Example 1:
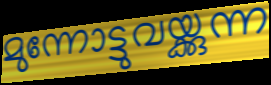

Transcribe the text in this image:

മുന്നോട്ടുവയ്ക്കുന്ന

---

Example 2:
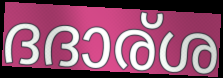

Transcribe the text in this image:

ദദാര്ശ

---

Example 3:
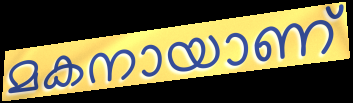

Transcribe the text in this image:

മകനായാണ്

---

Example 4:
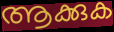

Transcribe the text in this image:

ആക്കുക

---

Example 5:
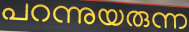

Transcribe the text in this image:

പറന്നുയരുന്ന